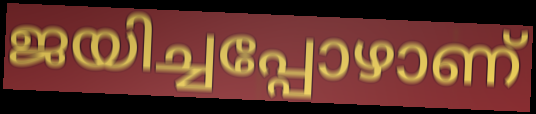
ജയിച്ചപ്പോഴാണ്